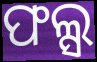
ଫଲ୍ସ